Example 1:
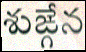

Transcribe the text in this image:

శుఙ్గేన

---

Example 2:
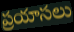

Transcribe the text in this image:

ప్రయాసలు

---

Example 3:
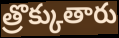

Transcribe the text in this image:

త్రొక్కుతారు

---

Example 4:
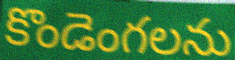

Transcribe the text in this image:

కొండెంగలను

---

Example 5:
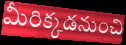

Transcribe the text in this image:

మీరిక్కడనుంచి